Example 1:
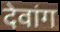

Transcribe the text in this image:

देवांग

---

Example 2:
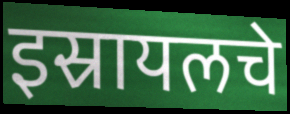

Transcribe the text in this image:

इस्रायलचे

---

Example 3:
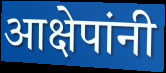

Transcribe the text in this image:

आक्षेपांनी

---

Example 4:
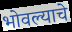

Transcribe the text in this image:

भोवल्याचे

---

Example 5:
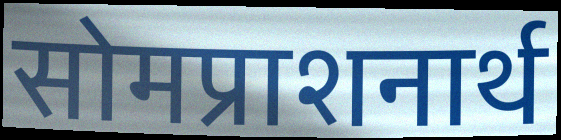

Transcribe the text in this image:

सोमप्राशनार्थ